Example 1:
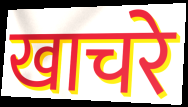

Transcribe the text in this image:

खाचरे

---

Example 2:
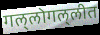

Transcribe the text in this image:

गल्लोगल्लीत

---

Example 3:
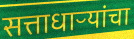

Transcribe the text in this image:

सत्ताधाऱ्यांचा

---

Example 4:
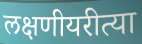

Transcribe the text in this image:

लक्षणीयरीत्या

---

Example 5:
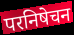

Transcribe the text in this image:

परनिषेचन